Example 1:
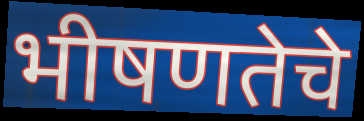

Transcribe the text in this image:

भीषणतेचे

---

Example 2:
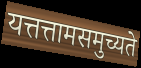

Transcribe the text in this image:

यत्तत्तामसमुच्यते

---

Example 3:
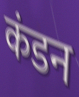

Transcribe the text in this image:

कंडन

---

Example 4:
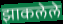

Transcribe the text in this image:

झाकलेले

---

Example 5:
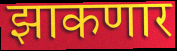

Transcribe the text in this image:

झाकणार